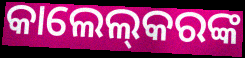
କାଲେଲ୍‌କରଙ୍କ